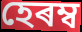
হেৰম্ব